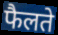
फैलते